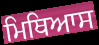
ਮਿਥਿਆਸ